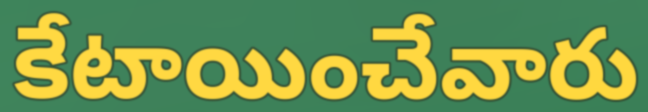
కేటాయించేవారు